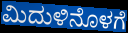
ಮಿದುಳಿನೊಳಗೆ